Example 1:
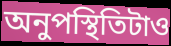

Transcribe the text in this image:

অনুপস্থিতিটাও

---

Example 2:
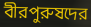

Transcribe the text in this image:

বীরপুরুষদের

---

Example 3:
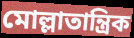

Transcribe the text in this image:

মোল্লাতান্ত্রিক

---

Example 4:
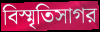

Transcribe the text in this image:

বিস্মৃতিসাগর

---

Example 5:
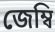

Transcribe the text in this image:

জেম্বি